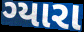
ગ્યારા